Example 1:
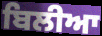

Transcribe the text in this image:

ਬਿਲੀਆ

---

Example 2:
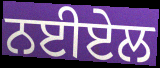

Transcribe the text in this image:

ਨਈਏਲ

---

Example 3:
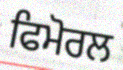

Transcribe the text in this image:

ਫਿਮੋਰਲ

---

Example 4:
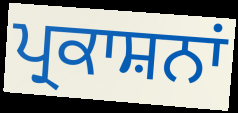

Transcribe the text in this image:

ਪ੍ਰਕਾਸ਼ਨਾਂ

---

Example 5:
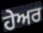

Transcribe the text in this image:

ਹੇਅਰ